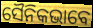
ସୈନିକଭାବେ